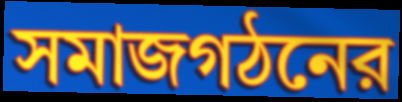
সমাজগঠনের